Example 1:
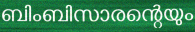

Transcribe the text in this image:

ബിംബിസാരന്റെയും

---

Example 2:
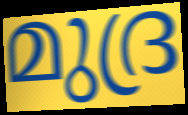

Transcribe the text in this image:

മുദ്ര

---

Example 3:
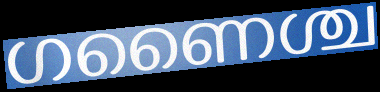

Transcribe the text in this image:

ഗണൈശ്ച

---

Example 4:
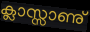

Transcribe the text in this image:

ക്ലാസ്സാണു്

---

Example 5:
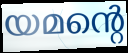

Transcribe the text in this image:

യമന്റെ